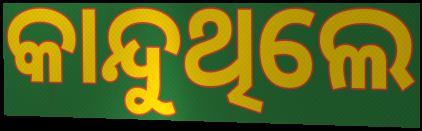
କାନ୍ଦୁଥିଲେ